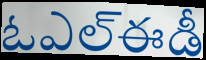
ఓఎల్ఈడీ